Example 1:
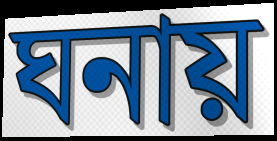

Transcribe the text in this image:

ঘনায়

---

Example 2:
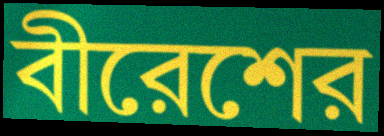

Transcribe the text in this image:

বীরেশের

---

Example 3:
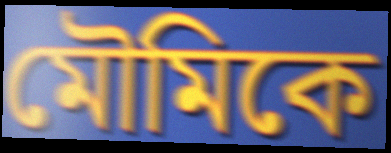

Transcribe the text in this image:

মৌমিকে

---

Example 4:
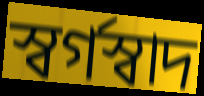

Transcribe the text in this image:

স্বর্গস্বাদ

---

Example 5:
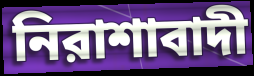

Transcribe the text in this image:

নিরাশাবাদী